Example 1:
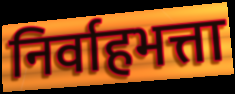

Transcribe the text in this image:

निर्वाहभत्ता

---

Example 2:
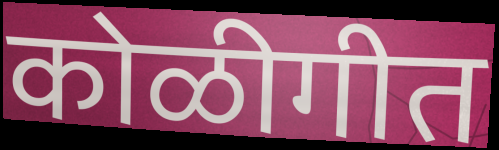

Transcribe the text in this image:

कोळीगीत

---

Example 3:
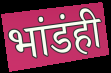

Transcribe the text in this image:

भांडंही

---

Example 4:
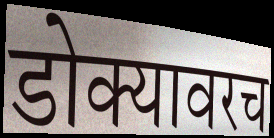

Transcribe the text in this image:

डोक्यावरच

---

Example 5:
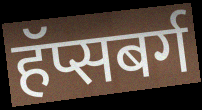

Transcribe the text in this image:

हॅप्सबर्ग